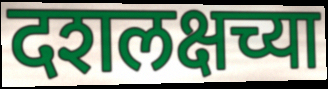
दशलक्षच्या